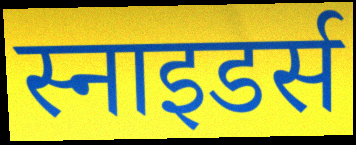
स्नाइडर्स